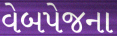
વેબપેજના